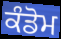
ਕੰਡੋਮ